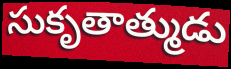
సుకృతాత్ముడు